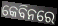
କେବିନରେ